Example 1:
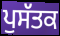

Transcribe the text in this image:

ਪੁਸੱਤਕ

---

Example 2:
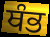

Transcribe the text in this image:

ਥੰਭ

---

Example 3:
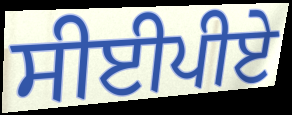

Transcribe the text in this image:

ਸੀਈਪੀਏ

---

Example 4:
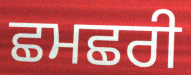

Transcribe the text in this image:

ਛਮਛਰੀ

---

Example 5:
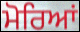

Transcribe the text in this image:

ਮੋਰਿਆਂ